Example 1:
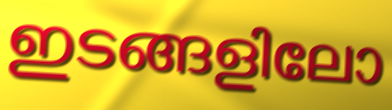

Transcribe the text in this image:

ഇടങ്ങളിലോ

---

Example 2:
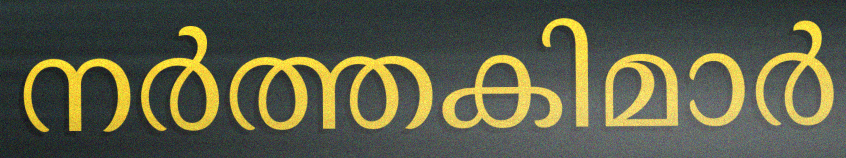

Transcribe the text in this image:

നർത്തകിമാർ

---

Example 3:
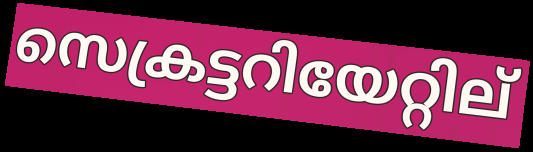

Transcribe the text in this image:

സെക്രട്ടറിയേറ്റില്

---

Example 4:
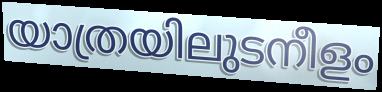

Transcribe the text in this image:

യാത്രയിലുടനീളം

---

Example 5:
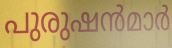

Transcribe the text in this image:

പുരുഷൻമാർ